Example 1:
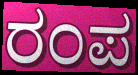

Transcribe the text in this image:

ರಂಪ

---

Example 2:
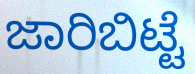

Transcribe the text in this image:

ಜಾರಿಬಿಟ್ಟೆ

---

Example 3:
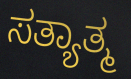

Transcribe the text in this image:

ಸತ್ಯಾತ್ಮ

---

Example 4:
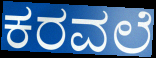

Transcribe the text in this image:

ಕರವಲೆ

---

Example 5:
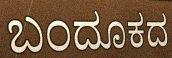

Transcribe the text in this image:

ಬಂದೂಕದ